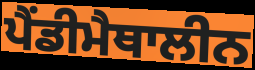
ਪੈਂਡੀਮੈਥਾਲੀਨ